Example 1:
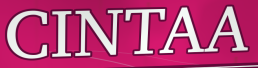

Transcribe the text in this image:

CINTAA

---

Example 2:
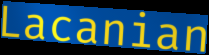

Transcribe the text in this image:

Lacanian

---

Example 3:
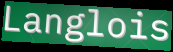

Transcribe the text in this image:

Langlois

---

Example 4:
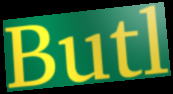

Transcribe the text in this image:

Butl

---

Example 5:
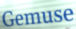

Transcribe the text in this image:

Gemuse